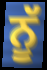
ਨੂੱ